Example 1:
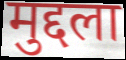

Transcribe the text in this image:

मुद्दला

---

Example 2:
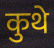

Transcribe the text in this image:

कुथे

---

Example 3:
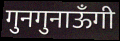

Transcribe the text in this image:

गुनगुनाऊँगी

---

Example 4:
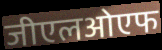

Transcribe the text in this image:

जीएलओएफ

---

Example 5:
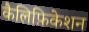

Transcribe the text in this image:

कैलिफ़िकेशन